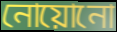
নোয়োনো